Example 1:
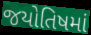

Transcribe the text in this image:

જયોતિષમાં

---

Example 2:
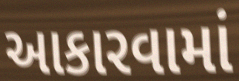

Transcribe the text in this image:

આકારવામાં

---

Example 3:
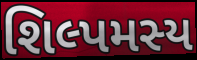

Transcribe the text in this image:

શિલ્પમસ્ય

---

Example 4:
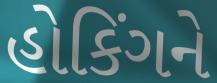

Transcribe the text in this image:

હોકિંગને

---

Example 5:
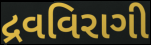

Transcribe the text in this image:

દ્રવવિરાગી